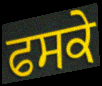
ਫਸਕੇ